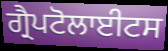
ਗ੍ਰੈਪਟੋਲਾਈਟਸ